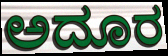
ಅದೂರ